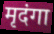
मृदंगा